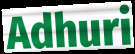
Adhuri